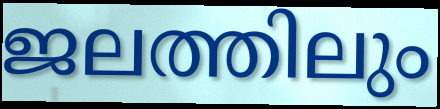
ജലത്തിലും